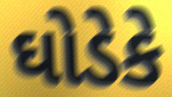
ઘોડેકે